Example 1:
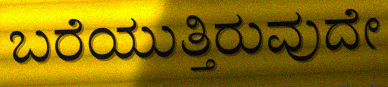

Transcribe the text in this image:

ಬರೆಯುತ್ತಿರುವುದೇ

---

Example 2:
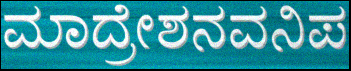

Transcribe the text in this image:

ಮಾದ್ರೇಶನವನಿಪ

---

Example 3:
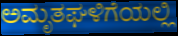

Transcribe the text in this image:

ಅಮೃತಘಳಿಗೆಯಲ್ಲಿ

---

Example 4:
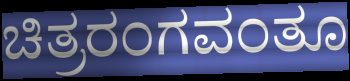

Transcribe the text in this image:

ಚಿತ್ರರಂಗವಂತೂ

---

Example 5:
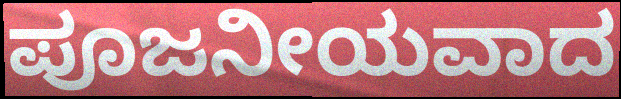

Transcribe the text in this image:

ಪೂಜನೀಯವಾದ